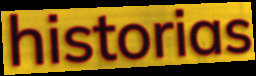
historias